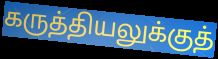
கருத்தியலுக்குத்